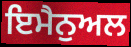
ਇਮੈਨੁਅਲ